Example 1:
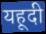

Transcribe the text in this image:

यहूदी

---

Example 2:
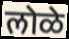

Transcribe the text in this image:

लोळे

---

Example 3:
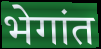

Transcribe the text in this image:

भेगांत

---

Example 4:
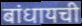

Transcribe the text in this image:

बांधायची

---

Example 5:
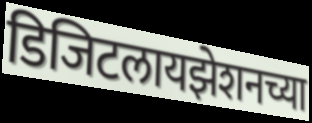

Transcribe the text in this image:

डिजिटलायझेशनच्या